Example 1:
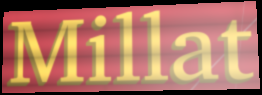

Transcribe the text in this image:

Millat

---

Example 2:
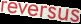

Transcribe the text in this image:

reversus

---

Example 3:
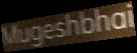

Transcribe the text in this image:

Mugeshbhai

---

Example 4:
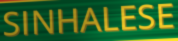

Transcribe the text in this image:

SINHALESE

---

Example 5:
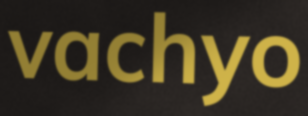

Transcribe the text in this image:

vachyo